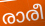
രാരീ